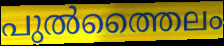
പുൽത്തൈലം